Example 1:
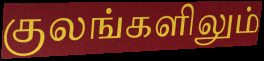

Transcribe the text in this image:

குலங்களிலும்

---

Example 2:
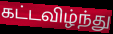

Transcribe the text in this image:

கட்டவிழ்ந்து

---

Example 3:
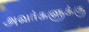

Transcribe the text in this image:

அவர்களுக்கு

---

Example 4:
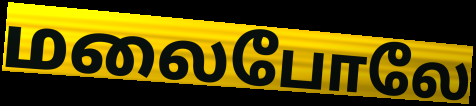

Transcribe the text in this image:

மலைபோலே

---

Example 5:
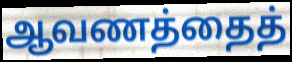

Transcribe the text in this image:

ஆவணத்தைத்